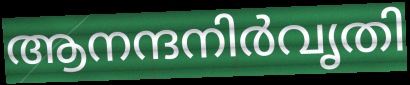
ആനന്ദനിർവൃതി